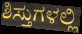
ಶಿಸ್ತುಗಳಲ್ಲಿ